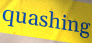
quashing